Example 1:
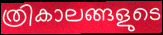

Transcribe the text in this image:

ത്രികാലങ്ങളുടെ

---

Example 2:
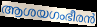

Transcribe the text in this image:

ആശയഗംഭീരൻ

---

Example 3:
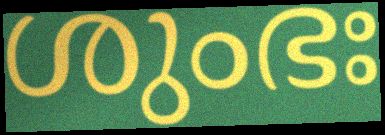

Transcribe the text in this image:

ശുംഭഃ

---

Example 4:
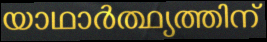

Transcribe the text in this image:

യാഥാർത്ഥ്യത്തിന്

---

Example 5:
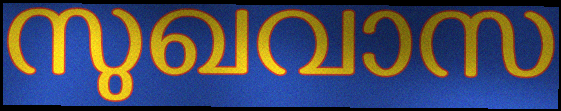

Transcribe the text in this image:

സുഖവാസ